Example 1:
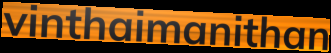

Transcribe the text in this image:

vinthaimanithan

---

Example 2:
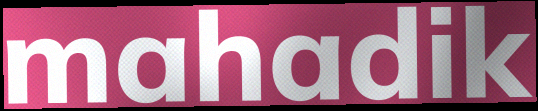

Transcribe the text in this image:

mahadik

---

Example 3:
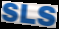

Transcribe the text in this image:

SLS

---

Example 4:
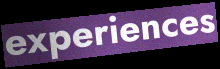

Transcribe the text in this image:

experiences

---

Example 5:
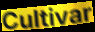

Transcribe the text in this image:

Cultivar